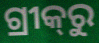
ଗ୍ରୀକ୍‌ରୁ